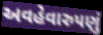
અવહેવારુપણું